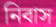
নিবাস